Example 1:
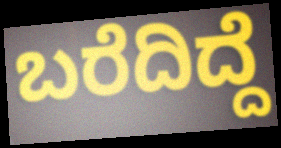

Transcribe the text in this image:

ಬರೆದಿದ್ದೆ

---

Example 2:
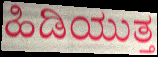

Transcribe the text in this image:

ಹಿಡಿಯುತ್ತ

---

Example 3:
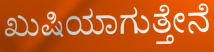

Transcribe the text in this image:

ಖುಷಿಯಾಗುತ್ತೇನೆ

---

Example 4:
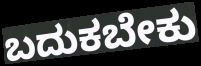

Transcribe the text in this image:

ಬದುಕಬೇಕು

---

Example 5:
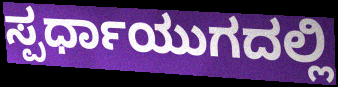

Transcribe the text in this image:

ಸ್ಪರ್ಧಾಯುಗದಲ್ಲಿ